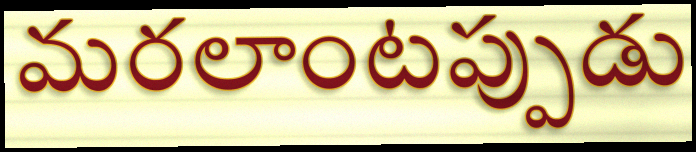
మరలాంటప్పుడు